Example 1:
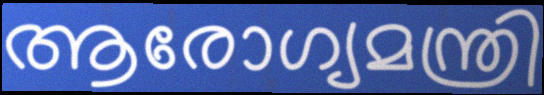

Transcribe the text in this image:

ആരോഗ്യമന്ത്രി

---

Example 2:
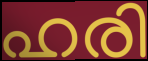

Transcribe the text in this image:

ഹരി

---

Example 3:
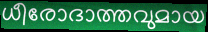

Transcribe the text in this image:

ധീരോദാത്തവുമായ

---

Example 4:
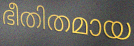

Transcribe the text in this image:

ഭീതിതമായ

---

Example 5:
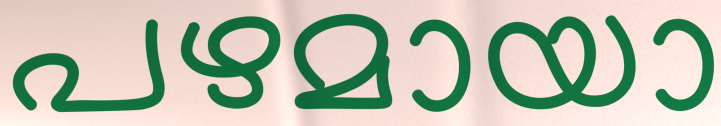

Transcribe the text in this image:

പഴമായാ